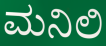
ಮನಿಲಿ